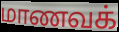
மாணவக்